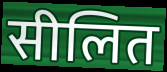
सीलित